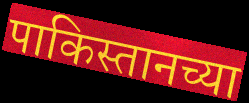
पाकिस्तानच्या